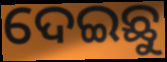
ଦେଇଛୁ